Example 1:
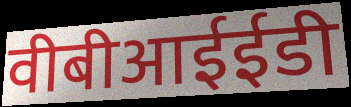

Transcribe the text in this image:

वीबीआईईडी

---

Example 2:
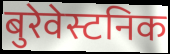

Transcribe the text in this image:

बुरेवेस्टनिक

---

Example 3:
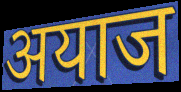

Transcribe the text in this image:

अयाज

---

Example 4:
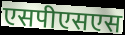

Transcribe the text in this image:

एसपीएसएस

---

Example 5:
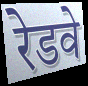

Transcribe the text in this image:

रेडवे